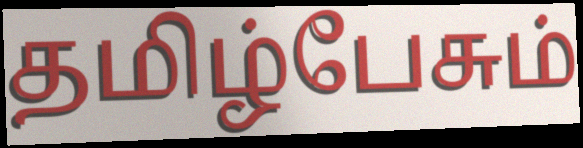
தமிழ்பேசும்